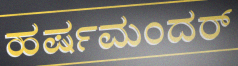
ಹರ್ಷಮಂದರ್